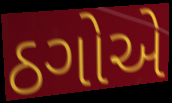
ઠગોએ